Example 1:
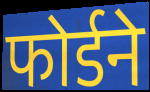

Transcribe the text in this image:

फोर्डने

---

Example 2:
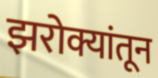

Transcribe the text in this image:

झरोक्यांतून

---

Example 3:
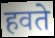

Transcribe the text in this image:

हवते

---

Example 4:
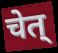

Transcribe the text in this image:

चेत्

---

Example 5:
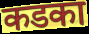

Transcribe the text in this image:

कडका